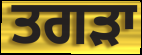
ਤਗੜਾ